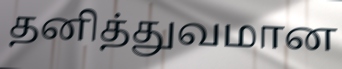
தனித்துவமான